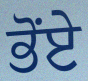
ਭੋਂਏ